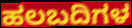
ಹಲಬದಿಗಳ